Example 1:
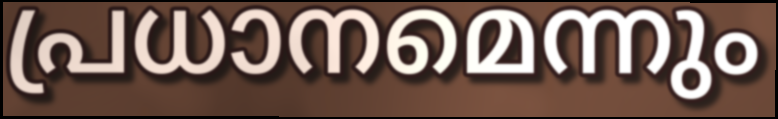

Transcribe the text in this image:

പ്രധാനമെന്നും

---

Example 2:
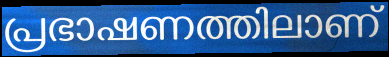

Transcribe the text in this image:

പ്രഭാഷണത്തിലാണ്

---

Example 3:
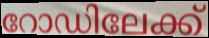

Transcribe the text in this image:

റോഡിലേക്ക്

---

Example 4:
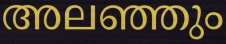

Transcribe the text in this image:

അലഞ്ഞും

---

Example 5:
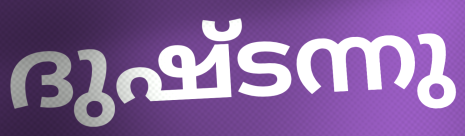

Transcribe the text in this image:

ദുഷ്ടന്നു